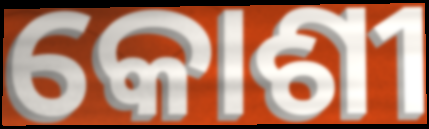
କୋଶୀ